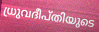
ധ്രുവദീപ്തിയുടെ